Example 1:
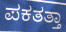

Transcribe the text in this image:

ಪಕತತ್ತಾ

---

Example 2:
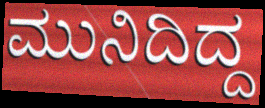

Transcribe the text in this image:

ಮುನಿದಿದ್ದ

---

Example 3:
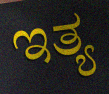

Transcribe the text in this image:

ಇತ್ಯ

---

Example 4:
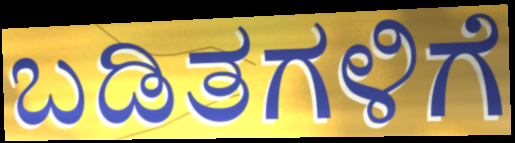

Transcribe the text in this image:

ಬಡಿತಗಳಿಗೆ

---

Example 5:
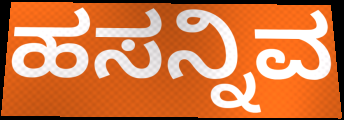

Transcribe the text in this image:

ಹಸನ್ನಿವ